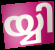
യ്യി